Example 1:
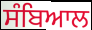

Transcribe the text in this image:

ਸੰਬਿਆਲ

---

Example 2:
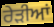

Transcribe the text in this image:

ਰੇੜੀਆਂ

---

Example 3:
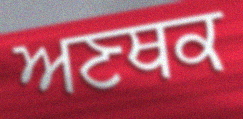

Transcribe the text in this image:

ਅਣਥਕ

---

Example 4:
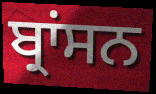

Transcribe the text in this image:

ਬ੍ਰਾਂਸਨ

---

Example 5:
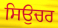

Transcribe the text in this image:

ਸਿਉਚਰ